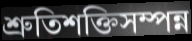
শ্রুতিশক্তিসম্পন্ন